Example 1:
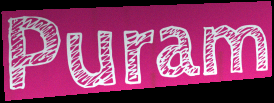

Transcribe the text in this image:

Puram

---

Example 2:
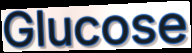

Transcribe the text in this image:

Glucose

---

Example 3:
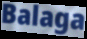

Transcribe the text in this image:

Balaga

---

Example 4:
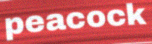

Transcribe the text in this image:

peacock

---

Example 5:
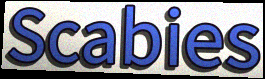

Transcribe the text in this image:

Scabies